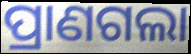
ପ୍ରାଣଗଲା